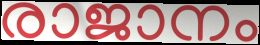
രാജാനം